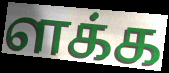
ளக்க